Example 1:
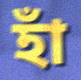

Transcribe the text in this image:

হাঁ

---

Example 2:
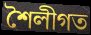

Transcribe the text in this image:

শৈলীগত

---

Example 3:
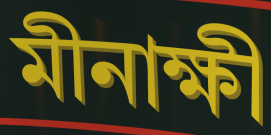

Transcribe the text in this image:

মীনাক্ষী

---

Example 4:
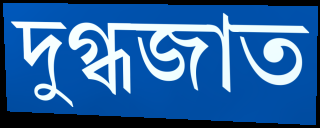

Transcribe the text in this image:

দুগ্ধজাত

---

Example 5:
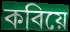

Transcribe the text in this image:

কবিয়ে